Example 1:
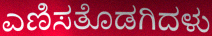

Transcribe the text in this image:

ಎಣಿಸತೊಡಗಿದಳು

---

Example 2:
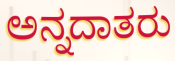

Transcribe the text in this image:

ಅನ್ನದಾತರು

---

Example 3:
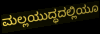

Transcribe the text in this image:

ಮಲ್ಲಯುದ್ಧದಲ್ಲಿಯೂ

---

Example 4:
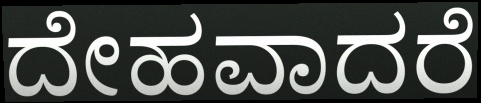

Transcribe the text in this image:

ದೇಹವಾದರೆ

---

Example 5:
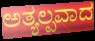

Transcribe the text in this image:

ಅತ್ಯಲ್ಪವಾದ